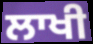
ਲਾਖੀ